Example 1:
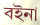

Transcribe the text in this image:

বইনা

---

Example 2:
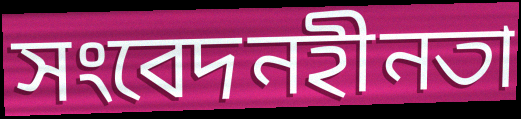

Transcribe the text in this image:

সংবেদনহীনতা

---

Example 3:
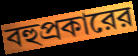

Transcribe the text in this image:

বহুপ্রকারের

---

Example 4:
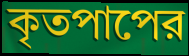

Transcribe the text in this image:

কৃতপাপের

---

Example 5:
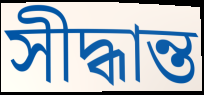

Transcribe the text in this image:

সীদ্ধান্ত